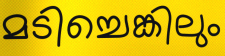
മടിച്ചെങ്കിലും